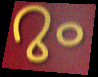
റും